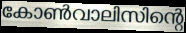
കോൺവാലിസിന്റെ